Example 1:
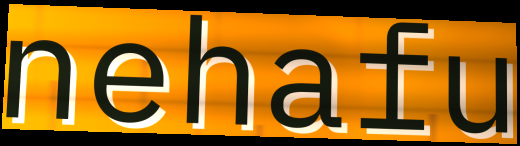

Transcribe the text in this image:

nehafu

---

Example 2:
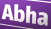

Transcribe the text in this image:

Abha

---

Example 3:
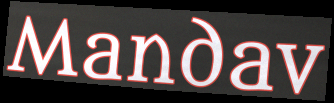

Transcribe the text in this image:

Mandav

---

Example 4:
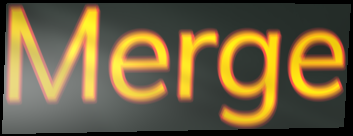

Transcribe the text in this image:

Merge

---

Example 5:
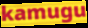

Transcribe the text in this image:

kamugu